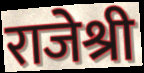
राजेश्री